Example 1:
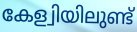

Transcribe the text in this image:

കേള്വിയിലുണ്ട്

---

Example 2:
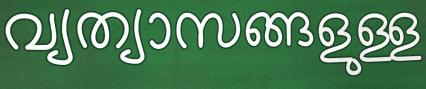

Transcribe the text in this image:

വ്യത്യാസങ്ങളുള്ള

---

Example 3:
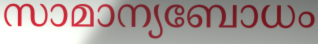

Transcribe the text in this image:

സാമാന്യബോധം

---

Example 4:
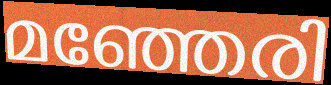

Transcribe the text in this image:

മഞ്ഞേരി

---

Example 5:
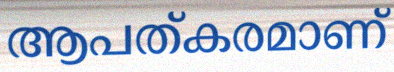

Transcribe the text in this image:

ആപത്കരമാണ്